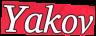
Yakov